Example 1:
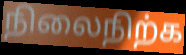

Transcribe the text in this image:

நிலைநிற்க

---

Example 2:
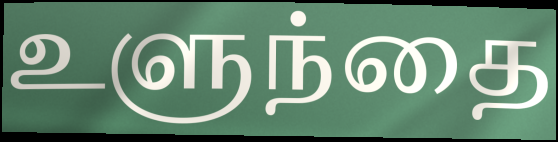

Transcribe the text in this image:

உளுந்தை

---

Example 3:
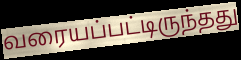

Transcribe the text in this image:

வரையப்பட்டிருந்தது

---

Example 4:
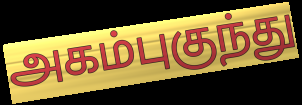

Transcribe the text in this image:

அகம்புகுந்து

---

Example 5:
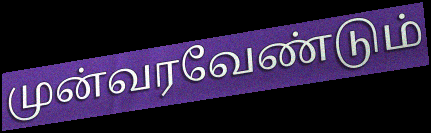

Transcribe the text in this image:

முன்வரவேண்டும்